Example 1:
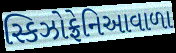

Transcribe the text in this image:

સ્કિઝોફ્રેનિઆવાળા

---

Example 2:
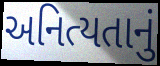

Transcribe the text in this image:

અનિત્યતાનું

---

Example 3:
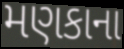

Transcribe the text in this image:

મણકાના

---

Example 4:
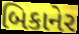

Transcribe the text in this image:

બિકાનેર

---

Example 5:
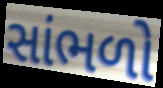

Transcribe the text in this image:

સાંભળો